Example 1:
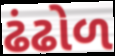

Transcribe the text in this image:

ઢંઢોળ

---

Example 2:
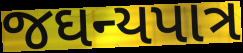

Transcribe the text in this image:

જઘન્યપાત્ર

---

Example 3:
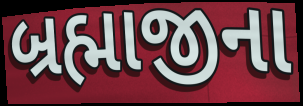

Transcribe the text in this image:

બ્રહ્માજીના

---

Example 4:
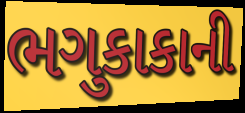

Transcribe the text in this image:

ભગુકાકાની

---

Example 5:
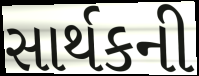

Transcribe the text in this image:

સાર્થકની